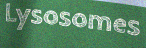
Lysosomes